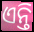
ଏନ୍ତି